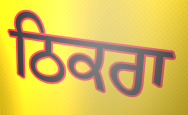
ਠਿਕਰਾ